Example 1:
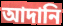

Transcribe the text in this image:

আদানি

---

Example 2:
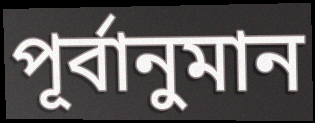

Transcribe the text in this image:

পূর্বানুমান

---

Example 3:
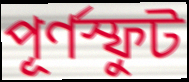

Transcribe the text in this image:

পূর্ণস্ফুট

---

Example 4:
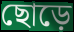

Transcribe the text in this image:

ছোড়ে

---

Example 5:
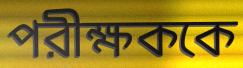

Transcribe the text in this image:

পরীক্ষককে